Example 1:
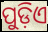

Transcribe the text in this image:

ପୁଡ଼ିଏ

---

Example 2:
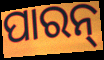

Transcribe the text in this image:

ପାରନ୍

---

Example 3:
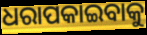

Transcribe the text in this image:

ଧରାପକାଇବାକୁ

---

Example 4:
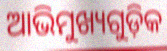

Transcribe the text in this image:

ଆଭିମୁଖ୍ୟଗୁଡ଼ିକ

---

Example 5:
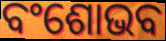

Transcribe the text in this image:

ବଂଶୋଭବ